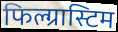
फिल्ग्रास्टिम